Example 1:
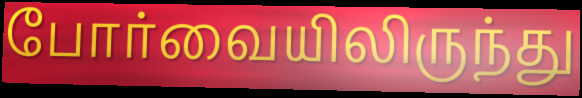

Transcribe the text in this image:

போர்வையிலிருந்து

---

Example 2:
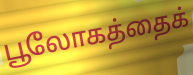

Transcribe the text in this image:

பூலோகத்தைக்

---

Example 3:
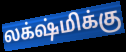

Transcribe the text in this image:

லக்‌ஷ்மிக்கு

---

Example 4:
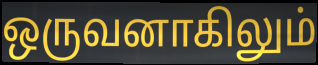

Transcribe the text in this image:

ஒருவனாகிலும்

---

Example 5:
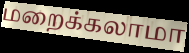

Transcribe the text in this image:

மறைக்கலாமா